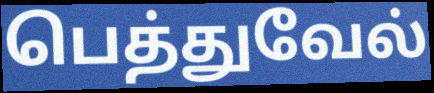
பெத்துவேல்